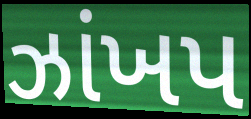
ઝાંખપ